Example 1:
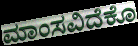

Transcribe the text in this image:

ಮಾಂಸವಿದೆಕೊ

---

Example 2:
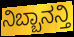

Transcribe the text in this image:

ನಿಬ್ಬಾನನ್ತಿ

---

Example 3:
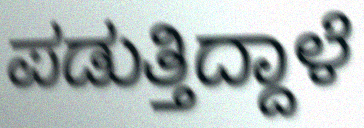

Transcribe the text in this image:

ಪಡುತ್ತಿದ್ದಾಳೆ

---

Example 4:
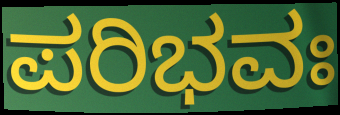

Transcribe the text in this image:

ಪರಿಭವಃ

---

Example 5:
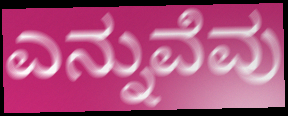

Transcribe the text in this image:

ಎನ್ನುವೆವು